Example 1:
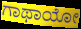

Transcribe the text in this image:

ಗಾಥಾಯೋ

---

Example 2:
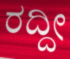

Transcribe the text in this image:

ರದ್ದೀ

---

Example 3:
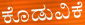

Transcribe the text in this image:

ಕೊಡುವಿಕೆ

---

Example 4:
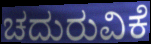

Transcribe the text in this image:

ಚದುರುವಿಕೆ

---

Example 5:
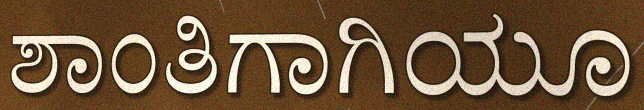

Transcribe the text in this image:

ಶಾಂತಿಗಾಗಿಯೂ